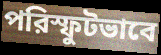
পরিস্ফুটভাবে